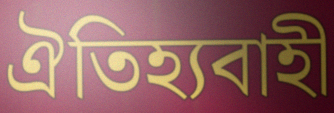
ঐতিহ্যবাহী